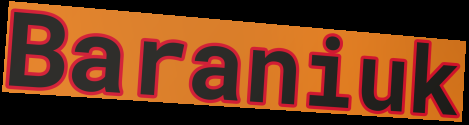
Baraniuk